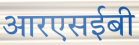
आरएसईबी